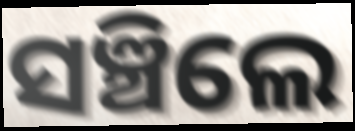
ସଞ୍ଚିଲେ